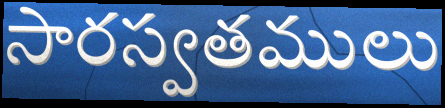
సారస్వతములు